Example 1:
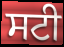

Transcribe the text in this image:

ਸਟੀ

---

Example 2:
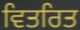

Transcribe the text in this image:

ਵਿਤਰਿਤ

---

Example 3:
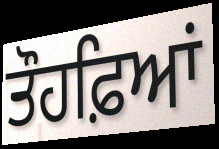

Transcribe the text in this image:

ਤੌਹਫ਼ਿਆਂ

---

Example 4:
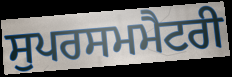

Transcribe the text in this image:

ਸੁਪਰਸਮਮੈਟਰੀ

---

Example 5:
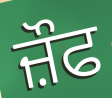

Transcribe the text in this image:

ਜ਼ੌਫ